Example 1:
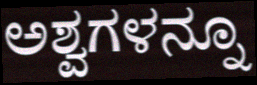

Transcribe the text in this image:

ಅಶ್ವಗಳನ್ನೂ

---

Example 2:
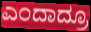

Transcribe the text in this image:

ಎಂದಾದ್ರೂ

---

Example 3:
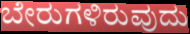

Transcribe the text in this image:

ಬೇರುಗಳಿರುವುದು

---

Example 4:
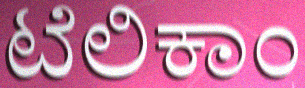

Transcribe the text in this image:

ಟೆಲಿಕಾಂ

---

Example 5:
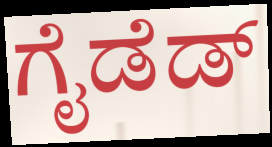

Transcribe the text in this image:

ಗೈಡೆಡ್